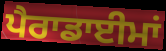
ਪੈਰਾਡਾਈਮਾਂ